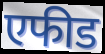
एफीड